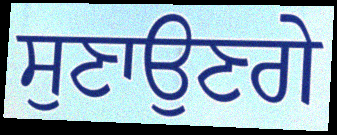
ਸੁਣਾਉਣਗੇ